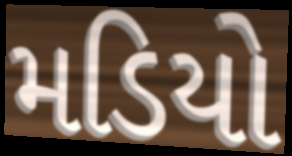
મડિયો